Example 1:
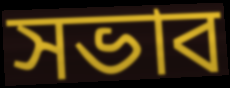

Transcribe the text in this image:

সভাব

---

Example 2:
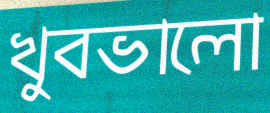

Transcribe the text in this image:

খুবভালো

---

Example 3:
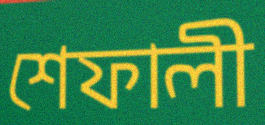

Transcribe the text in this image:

শেফালী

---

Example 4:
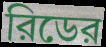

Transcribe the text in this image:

রিডের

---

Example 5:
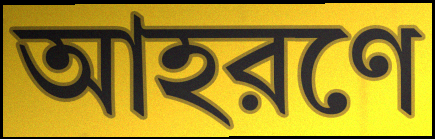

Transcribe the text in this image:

আহরণে